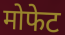
मोफेट